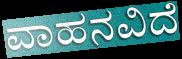
ವಾಹನವಿದೆ